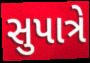
સુપાત્રે